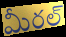
మీరల్